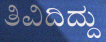
ತಿವಿದಿದ್ದು